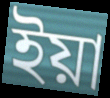
ইয়া